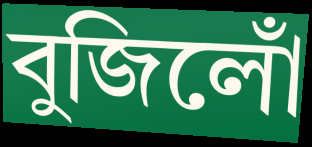
বুজিলোঁ